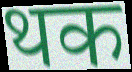
थक